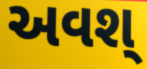
અવશ્